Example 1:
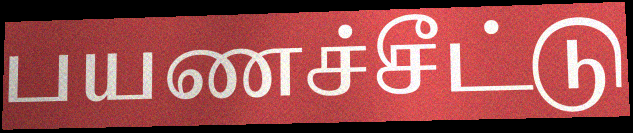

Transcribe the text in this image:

பயணச்சீட்டு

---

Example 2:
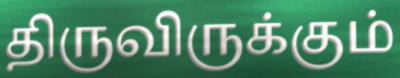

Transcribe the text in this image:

திருவிருக்கும்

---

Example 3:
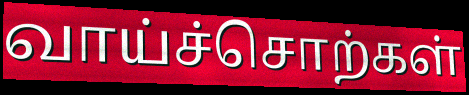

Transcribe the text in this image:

வாய்ச்சொற்கள்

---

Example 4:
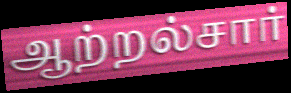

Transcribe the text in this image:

ஆற்றல்சார்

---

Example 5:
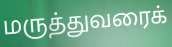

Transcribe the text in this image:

மருத்துவரைக்